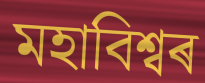
মহাবিশ্বৰ